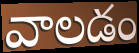
వాలడం